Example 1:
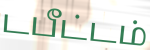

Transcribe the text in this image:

டபீட்டம்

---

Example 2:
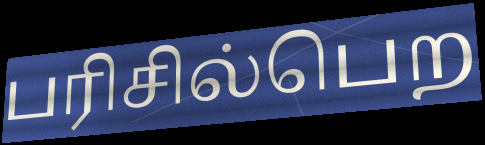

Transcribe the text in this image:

பரிசில்பெற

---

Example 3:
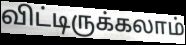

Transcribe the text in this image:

விட்டிருக்கலாம்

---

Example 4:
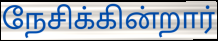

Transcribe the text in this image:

நேசிக்கின்றார்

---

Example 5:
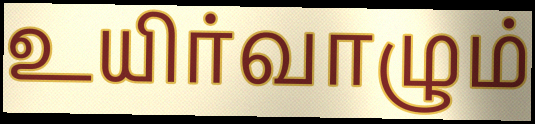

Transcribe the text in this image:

உயிர்வாழும்